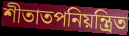
শীতাতপনিয়ন্ত্রিত